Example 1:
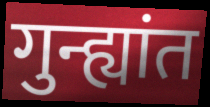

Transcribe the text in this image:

गुन्ह्यांत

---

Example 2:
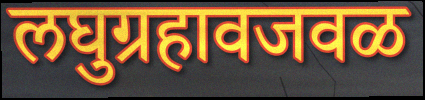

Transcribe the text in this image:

लघुग्रहावजवळ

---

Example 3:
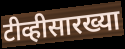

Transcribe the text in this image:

टीव्हीसारख्या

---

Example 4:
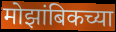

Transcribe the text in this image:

मोझांबिकच्या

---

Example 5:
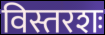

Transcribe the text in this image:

विस्तरशः